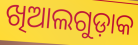
ଖିଆଲଗୁଡ଼ାକ